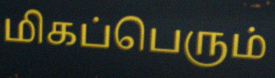
மிகப்பெரும்